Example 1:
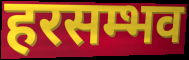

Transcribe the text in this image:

हरसम्भव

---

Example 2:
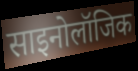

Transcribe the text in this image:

साइनोलॉजिक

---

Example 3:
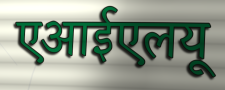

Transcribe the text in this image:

एआईएलयू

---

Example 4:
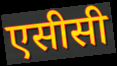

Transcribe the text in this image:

एसीसी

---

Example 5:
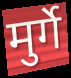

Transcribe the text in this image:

मुर्गे